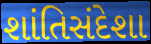
શાંતિસંદેશા